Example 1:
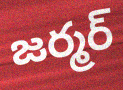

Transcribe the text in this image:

జర్మర్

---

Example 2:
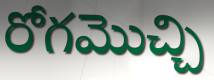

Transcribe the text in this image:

రోగమొచ్చి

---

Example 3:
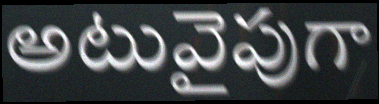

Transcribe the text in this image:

అటువైపుగా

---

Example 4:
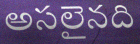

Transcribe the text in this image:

అసలైనది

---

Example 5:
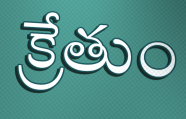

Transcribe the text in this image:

క్రేతుం